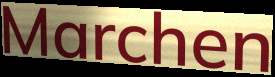
Marchen